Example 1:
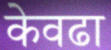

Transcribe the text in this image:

केवढा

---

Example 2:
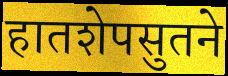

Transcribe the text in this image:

हातशेपसुतने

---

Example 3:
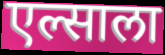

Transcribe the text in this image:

एल्साला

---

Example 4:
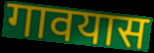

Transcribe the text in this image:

गावयास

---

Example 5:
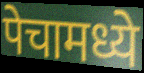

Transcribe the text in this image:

पेचामध्ये